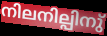
നിലനില്പിനു്